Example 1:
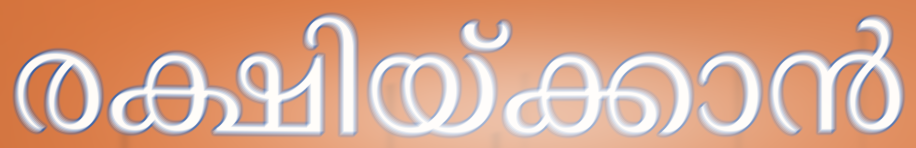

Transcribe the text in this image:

രക്ഷിയ്ക്കാൻ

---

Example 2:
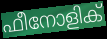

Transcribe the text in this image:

ഫീനോളിക്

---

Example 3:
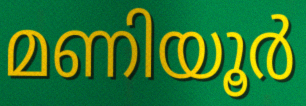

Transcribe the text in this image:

മണിയൂർ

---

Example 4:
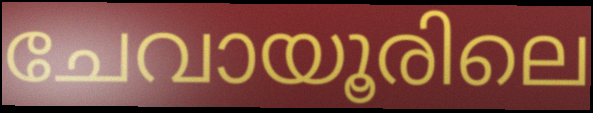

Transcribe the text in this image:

ചേവായൂരിലെ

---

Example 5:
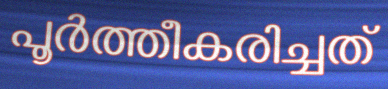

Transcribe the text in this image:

പൂർത്തീകരിച്ചത്